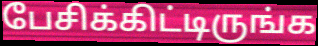
பேசிக்கிட்டிருங்க